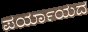
ಪರ್ಯಾಯದ